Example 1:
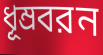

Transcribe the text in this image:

ধূম্রবরন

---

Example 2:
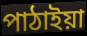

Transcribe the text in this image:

পাঠাইয়া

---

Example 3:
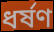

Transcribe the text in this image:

ধর্ষণ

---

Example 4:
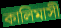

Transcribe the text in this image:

কালিমাসী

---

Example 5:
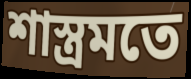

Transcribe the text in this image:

শাস্ত্রমতে